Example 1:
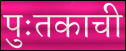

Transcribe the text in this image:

पुःतकाची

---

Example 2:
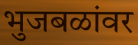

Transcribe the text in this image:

भुजबळांवर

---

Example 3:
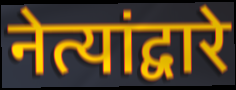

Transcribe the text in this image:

नेत्यांद्वारे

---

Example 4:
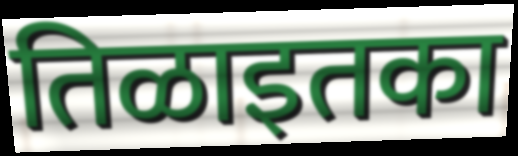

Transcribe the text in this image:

तिळाइतका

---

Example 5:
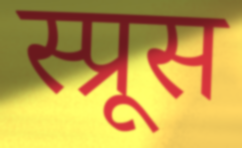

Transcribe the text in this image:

स्प्रूस